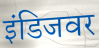
इंडिजवर